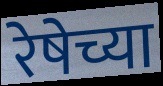
रेषेच्या